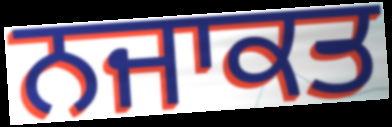
ਨਜਾਕਤ